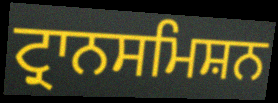
ਟ੍ਰਾਨਸਮਿਸ਼ਨ